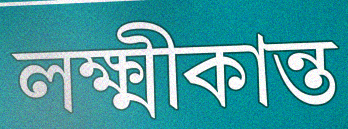
লক্ষ্মীকান্ত